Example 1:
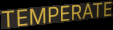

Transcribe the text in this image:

TEMPERATE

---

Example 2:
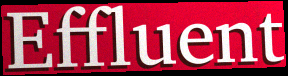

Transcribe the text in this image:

Effluent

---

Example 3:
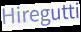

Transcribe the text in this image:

Hiregutti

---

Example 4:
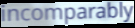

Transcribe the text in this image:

incomparably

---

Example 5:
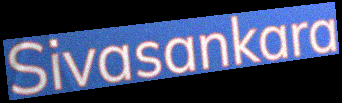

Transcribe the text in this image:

Sivasankara